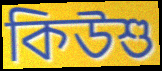
কিউশু